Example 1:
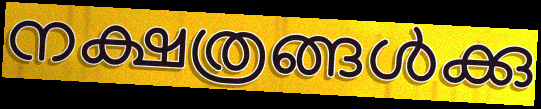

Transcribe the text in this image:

നക്ഷത്രങ്ങൾക്കു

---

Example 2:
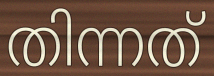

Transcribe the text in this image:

തിന്നത്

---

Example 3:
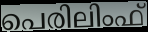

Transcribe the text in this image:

പെരിലിംഫ്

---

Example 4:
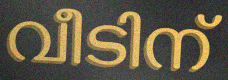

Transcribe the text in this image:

വീടിന്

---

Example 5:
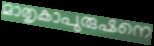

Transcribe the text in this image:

മാതൃകാപുരുഷനെ